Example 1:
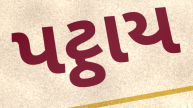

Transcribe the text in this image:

પટ્ઠાય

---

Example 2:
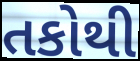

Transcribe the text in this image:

તકોથી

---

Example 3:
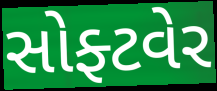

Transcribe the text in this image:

સોફ્ટવેર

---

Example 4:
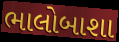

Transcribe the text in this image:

ભાલોબાશા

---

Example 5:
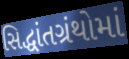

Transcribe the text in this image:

સિદ્ધાંતગ્રંથોમાં